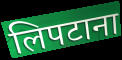
लिपटाना